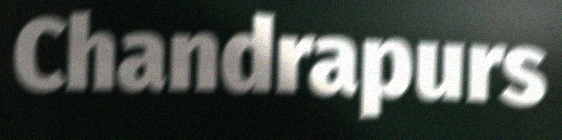
Chandrapurs